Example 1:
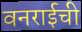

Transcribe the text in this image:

वनराईची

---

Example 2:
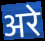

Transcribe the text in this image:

अरे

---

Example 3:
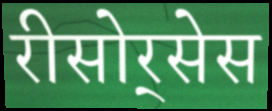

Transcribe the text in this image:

रीसोर्सेस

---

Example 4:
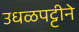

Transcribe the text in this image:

उधळपट्टीने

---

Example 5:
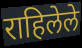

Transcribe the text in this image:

राहिलेले